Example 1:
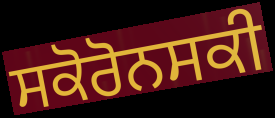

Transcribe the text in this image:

ਸਕੋਰੋਨਸਕੀ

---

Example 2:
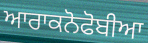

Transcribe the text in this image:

ਆਰਾਕਨੋਫੋਬੀਆ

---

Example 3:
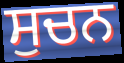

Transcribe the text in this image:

ਸੁਚਨ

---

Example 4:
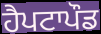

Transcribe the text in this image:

ਹੈਪਟਾਪੌਡ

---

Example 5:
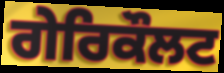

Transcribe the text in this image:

ਗੇਰਿਕੌਲਟ